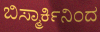
ಬಿಸ್ಮಾರ್ಕಿನಿಂದ